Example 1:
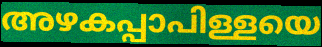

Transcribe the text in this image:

അഴകപ്പാപിള്ളയെ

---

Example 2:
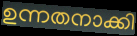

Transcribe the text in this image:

ഉന്നതനാക്കി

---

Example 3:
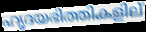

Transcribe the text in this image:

ഹൃദയഭിത്തികളില്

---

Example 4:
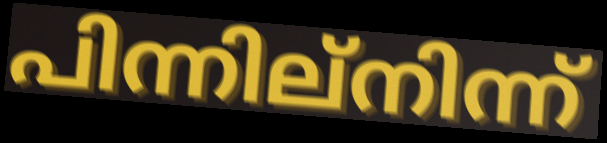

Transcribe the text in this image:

പിന്നില്നിന്ന്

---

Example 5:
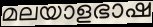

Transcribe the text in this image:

മലയാളഭാഷ